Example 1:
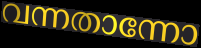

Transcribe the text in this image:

വന്നതാന്നോ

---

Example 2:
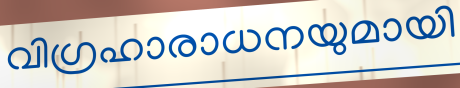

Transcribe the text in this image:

വിഗ്രഹാരാധനയുമായി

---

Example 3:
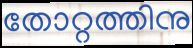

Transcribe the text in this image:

തോറ്റത്തിനു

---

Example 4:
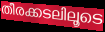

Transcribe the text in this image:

തീരക്കടലിലൂടെ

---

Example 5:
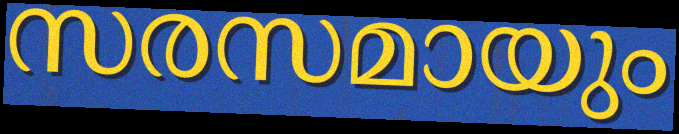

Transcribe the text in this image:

സരസമായും